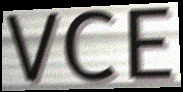
VCE